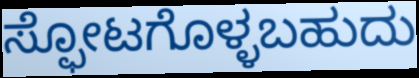
ಸ್ಫೋಟಗೊಳ್ಳಬಹುದು